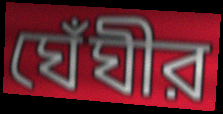
ঘেঁঘীর